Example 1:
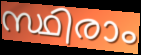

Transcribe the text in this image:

സ്ഥിരാം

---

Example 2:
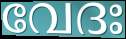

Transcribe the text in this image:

വേദഃ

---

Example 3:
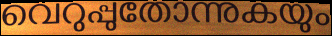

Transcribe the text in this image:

വെറുപ്പുതോന്നുകയും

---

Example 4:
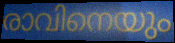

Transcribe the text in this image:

രാവിനെയും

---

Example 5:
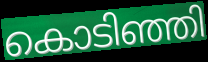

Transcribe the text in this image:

കൊടിഞ്ഞി